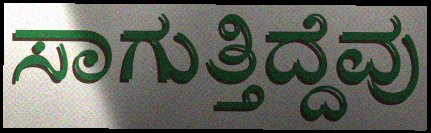
ಸಾಗುತ್ತಿದ್ದೆವು